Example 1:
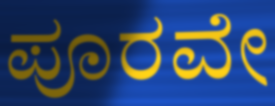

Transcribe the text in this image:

ಪೂರವೇ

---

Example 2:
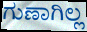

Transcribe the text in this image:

ಗುಣಾಗಿಲ್ಲ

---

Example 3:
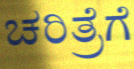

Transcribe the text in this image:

ಚರಿತ್ರೆಗೆ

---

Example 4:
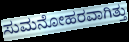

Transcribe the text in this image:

ಸುಮನೋಹರವಾಗಿತ್ತು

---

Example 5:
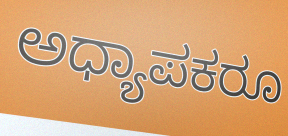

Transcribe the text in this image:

ಅಧ್ಯಾಪಕರೂ